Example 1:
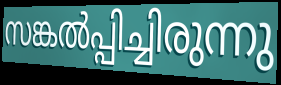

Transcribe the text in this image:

സങ്കൽപ്പിച്ചിരുന്നു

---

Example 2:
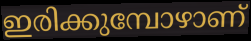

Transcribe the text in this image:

ഇരിക്കുമ്പോഴാണ്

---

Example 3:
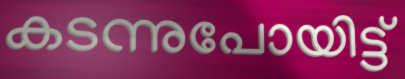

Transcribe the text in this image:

കടന്നുപോയിട്ട്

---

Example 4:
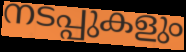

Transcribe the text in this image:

നടപ്പുകളും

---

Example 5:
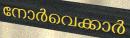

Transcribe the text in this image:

നോർവെക്കാർ